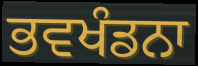
ਭਵਖੰਡਨਾ